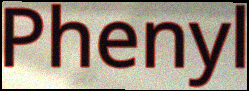
Phenyl